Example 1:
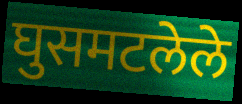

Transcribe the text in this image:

घुसमटलेले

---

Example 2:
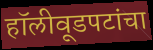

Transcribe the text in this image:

हॉलीवूडपटांचा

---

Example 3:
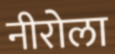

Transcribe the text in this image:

नीरोला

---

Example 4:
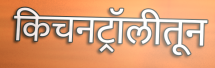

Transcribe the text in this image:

किचनट्रॉलीतून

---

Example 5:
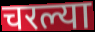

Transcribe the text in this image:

चरल्या